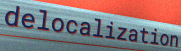
delocalization